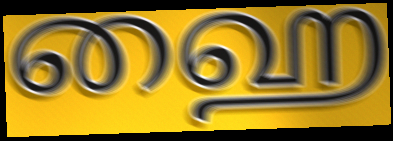
ஹை